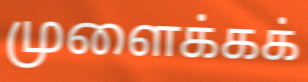
முளைக்கக்